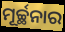
ମୂର୍ଚ୍ଛନାର